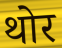
थोर